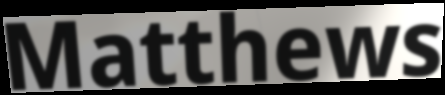
Matthews